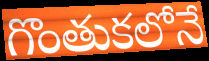
గొంతుకలోనే